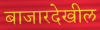
बाजारदेखील